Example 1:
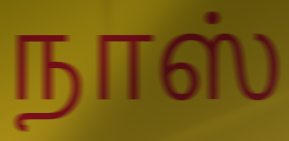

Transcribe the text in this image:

நாஸ்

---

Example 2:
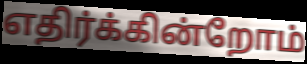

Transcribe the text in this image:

எதிர்க்கின்றோம்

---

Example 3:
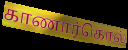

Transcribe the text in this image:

காணார்கொல்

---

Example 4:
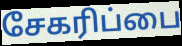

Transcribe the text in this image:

சேகரிப்பை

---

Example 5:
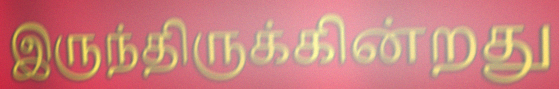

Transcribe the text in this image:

இருந்திருக்கின்றது